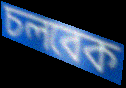
চলবেক